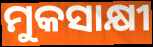
ମୁକସାକ୍ଷୀ